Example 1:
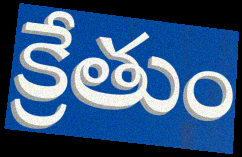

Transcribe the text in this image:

క్రేతుం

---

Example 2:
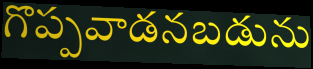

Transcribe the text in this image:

గొప్పవాడనబడును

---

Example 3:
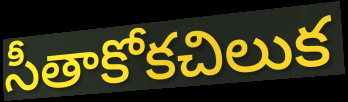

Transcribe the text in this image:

సీతాకోకచిలుక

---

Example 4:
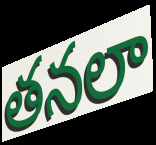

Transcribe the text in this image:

తనలా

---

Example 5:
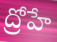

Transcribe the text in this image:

ద్రోహే